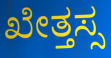
ಖೇತ್ತಸ್ಸ